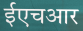
ईएचआर